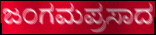
ಜಂಗಮಪ್ರಸಾದ